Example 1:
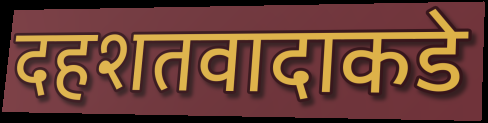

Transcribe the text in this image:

दहशतवादाकडे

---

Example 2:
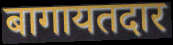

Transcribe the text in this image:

बागायतदार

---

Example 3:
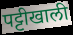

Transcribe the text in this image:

पट्टीखाली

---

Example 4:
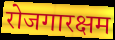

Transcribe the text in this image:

रोजगारक्षम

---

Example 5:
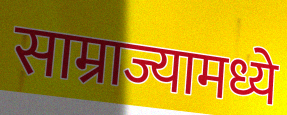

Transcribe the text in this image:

साम्राज्यामध्ये